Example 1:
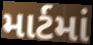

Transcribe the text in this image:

માર્ટમાં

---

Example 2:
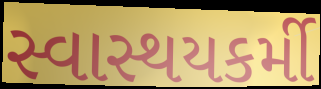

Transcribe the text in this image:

સ્વાસ્થયકર્મી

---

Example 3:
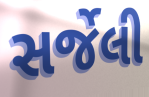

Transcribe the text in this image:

સર્જેલી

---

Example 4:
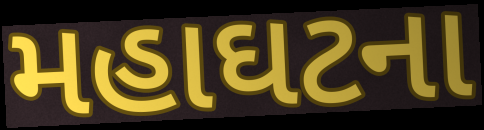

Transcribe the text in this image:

મહાઘટના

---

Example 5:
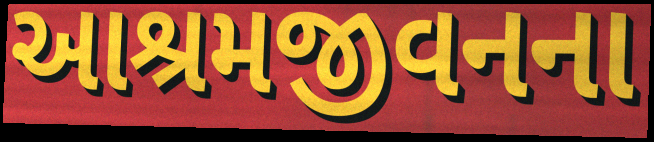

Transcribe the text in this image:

આશ્રમજીવનના